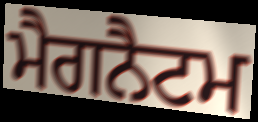
ਮੈਗਨੈਟਮ